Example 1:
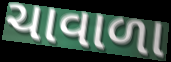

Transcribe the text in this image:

ચાવાળા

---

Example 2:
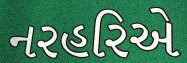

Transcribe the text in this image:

નરહરિએ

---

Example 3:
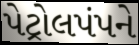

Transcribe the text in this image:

પેટ્રોલપંપને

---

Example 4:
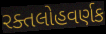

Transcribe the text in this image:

રક્તલોહવર્ણક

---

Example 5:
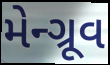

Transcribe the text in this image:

મેન્ગ્રૂવ